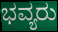
ಭವ್ಯರು